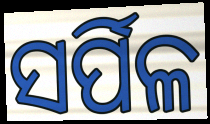
ସର୍ପିଳ